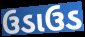
ઉડાઉડ